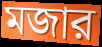
মজার